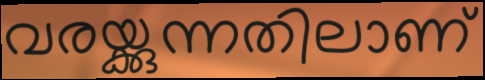
വരയ്ക്കുന്നതിലാണ്